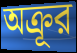
অক্রূর